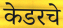
केडरचे